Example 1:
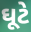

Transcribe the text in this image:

ઘૂટે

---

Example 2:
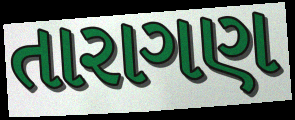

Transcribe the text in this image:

તારાગણ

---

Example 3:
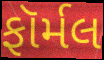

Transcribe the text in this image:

ફૉર્મલ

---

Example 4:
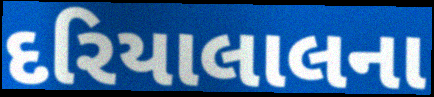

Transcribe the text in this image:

દરિયાલાલના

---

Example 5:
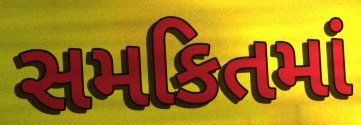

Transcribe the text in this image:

સમકિતમાં